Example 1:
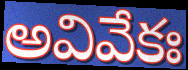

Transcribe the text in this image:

అవివేకః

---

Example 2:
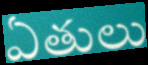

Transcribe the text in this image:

ఏతులు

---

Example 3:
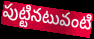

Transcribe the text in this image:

పుట్టినటువంటి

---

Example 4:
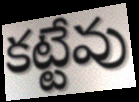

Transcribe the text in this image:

కట్టేవు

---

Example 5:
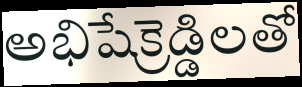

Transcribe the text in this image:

అభిషేక్రెడ్డిలతో